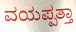
ವಯಪ್ಪತ್ತಾ